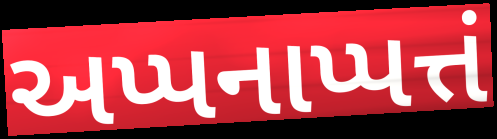
અપ્પનાપ્પત્તં